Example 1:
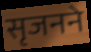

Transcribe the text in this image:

सृजनने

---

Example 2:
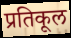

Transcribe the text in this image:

प्रतिकूल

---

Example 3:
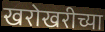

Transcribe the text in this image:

खरोखरीच्या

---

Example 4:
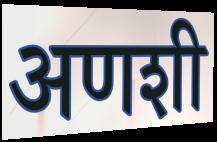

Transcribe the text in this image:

अणशी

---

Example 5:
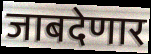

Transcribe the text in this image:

जाबदेणार